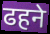
ढहने